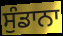
ਸੁੰਡਾਨਾ